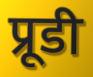
प्रूडी